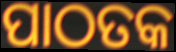
ପାଠତକ